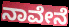
ನಾವೇನೆ